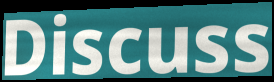
Discuss